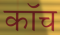
कॉच